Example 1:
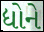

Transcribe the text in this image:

દ્યોને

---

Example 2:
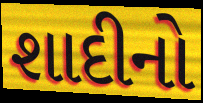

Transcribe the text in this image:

શાદીનો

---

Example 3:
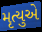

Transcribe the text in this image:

મૃત્યુએ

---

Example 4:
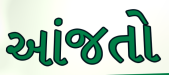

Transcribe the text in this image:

આંજતો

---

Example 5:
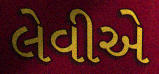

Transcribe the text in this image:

લેવીએ